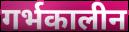
गर्भकालीन